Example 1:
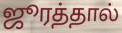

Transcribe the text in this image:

ஜூரத்தால்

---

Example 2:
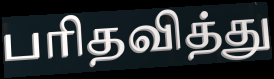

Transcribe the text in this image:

பரிதவித்து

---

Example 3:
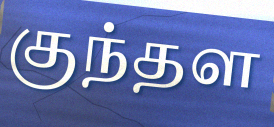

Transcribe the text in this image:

குந்தள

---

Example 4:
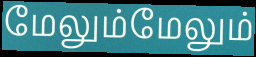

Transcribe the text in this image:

மேலும்மேலும்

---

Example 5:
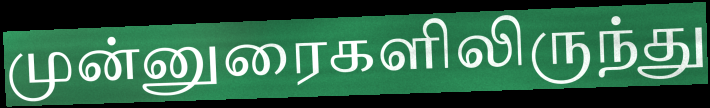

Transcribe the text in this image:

முன்னுரைகளிலிருந்து